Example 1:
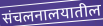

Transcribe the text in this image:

संचलनालयातील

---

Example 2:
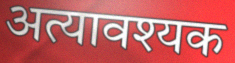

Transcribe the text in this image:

अत्यावश्यक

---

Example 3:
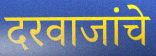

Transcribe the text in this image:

दरवाजांचे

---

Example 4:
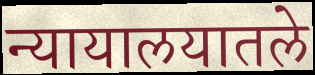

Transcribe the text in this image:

न्यायालयातले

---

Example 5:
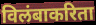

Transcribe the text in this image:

विलंबाकरिता